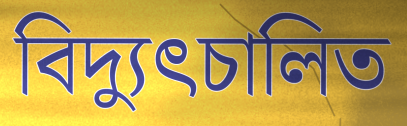
বিদ্যুৎচালিত